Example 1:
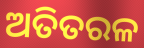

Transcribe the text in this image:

ଅତିତରଳ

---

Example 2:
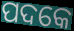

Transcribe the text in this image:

ପଦକେ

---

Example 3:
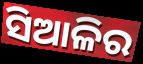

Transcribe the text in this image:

ସିଆଳିର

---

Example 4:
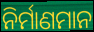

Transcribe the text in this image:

ନିର୍ମାଣମାନ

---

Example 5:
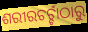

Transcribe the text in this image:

ଶରୀରଚର୍ଚ୍ଚାଠାରୁ